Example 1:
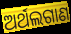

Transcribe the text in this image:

ଅର୍ଥଲଗାଣ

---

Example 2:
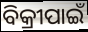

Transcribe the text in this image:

ବିକ୍ରୀପାଇଁ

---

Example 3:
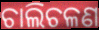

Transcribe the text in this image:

ଚାଲିଚଳଣ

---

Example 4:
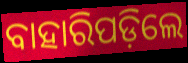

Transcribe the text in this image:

ବାହାରିପଡ଼ିଲେ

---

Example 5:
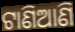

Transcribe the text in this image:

ଟାଣିଆଣି